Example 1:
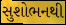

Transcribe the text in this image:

સુશોભનથી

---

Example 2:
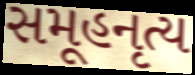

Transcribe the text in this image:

સમૂહનૃત્ય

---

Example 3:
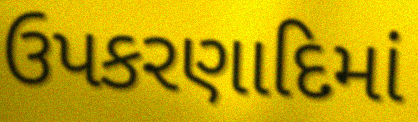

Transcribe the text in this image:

ઉપકરણાદિમાં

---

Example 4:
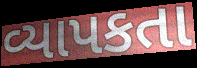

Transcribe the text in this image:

વ્યાપકતા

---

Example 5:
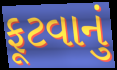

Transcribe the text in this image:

ફૂટવાનું